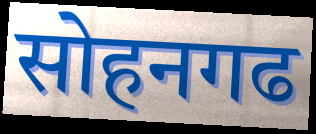
सोहनगढ